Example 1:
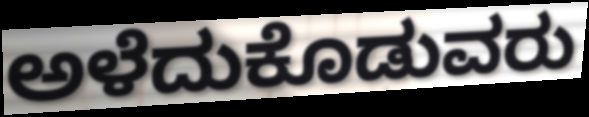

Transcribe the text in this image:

ಅಳೆದುಕೊಡುವರು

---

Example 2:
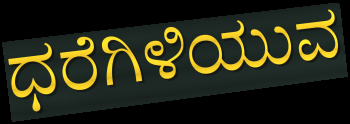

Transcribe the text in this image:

ಧರೆಗಿಳಿಯುವ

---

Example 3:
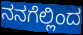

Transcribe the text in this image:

ನನಗೆಲ್ಲಿಂದ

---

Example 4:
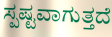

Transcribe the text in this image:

ಸ್ಪಷ್ಟವಾಗುತ್ತದೆ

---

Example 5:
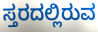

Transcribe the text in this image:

ಸ್ತರದಲ್ಲಿರುವ